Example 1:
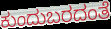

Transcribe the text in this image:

ಕುಂದುಬರದಂತೆ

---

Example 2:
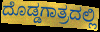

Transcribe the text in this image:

ದೊಡ್ಡಗಾತ್ರದಲ್ಲಿ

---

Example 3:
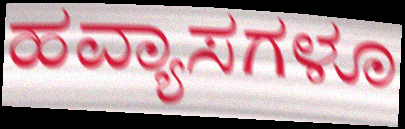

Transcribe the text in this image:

ಹವ್ಯಾಸಗಳೂ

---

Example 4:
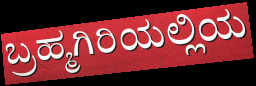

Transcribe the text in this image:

ಬ್ರಹ್ಮಗಿರಿಯಲ್ಲಿಯ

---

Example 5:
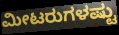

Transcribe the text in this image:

ಮೀಟರುಗಳಷ್ಟು